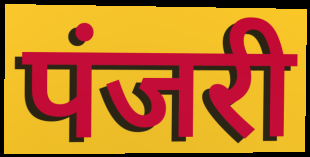
पंजरी